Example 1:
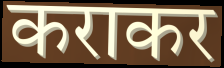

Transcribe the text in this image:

कराकर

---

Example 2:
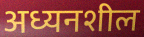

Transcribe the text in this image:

अध्यनशील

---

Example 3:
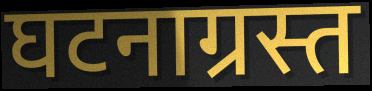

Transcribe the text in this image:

घटनाग्रस्त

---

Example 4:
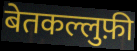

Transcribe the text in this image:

बेतकल्लुफ़ी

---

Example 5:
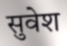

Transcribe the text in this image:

सुवेश